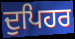
ਦੁਪਿਹਰ